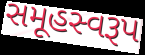
સમૂહસ્વરૂપ